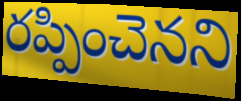
రప్పించెనని